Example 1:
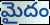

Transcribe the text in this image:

మైదం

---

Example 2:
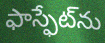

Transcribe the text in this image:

ఫాస్ఫేట్‌ను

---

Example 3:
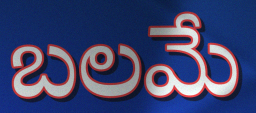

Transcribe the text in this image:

బలమే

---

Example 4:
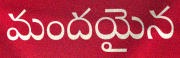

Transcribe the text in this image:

మందయైన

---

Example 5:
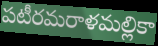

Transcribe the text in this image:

పటీరమరాళమల్లికా